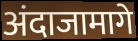
अंदाजामागे